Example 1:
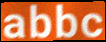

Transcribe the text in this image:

abbc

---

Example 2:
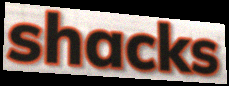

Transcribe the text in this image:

shacks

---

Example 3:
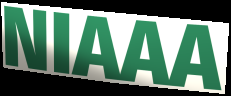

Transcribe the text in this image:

NIAAA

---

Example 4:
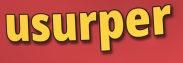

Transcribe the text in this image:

usurper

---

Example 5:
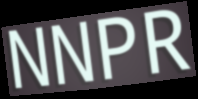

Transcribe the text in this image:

NNPR